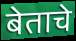
बेताचे